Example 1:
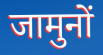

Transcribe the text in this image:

जामुनों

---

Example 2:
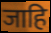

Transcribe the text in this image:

जाहि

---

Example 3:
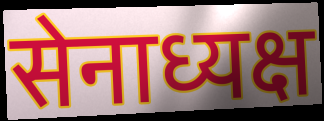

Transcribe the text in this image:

सेनाध्यक्ष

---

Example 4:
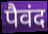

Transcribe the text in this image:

पैवंद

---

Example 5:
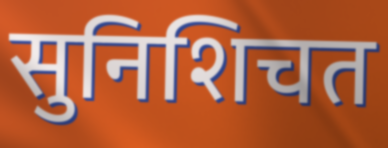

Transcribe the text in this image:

सुनिशिचत